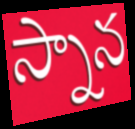
స్నాన